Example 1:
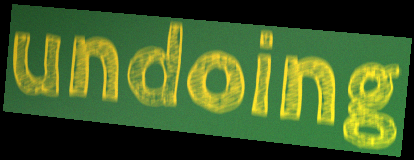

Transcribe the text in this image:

undoing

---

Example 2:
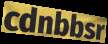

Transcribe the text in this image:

cdnbbsr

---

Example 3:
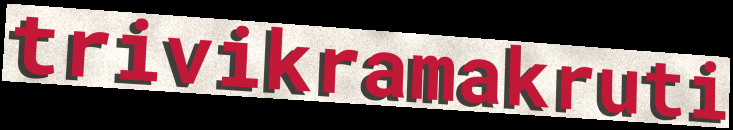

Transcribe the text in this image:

trivikramakruti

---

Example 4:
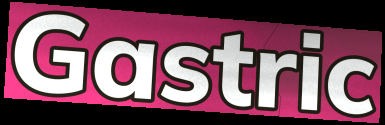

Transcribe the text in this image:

Gastric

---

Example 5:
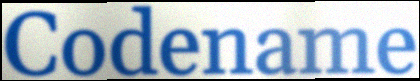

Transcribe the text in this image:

Codename